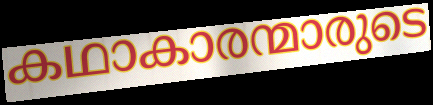
കഥാകാരന്മാരുടെ